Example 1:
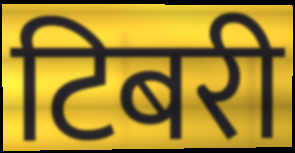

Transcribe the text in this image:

टिबरी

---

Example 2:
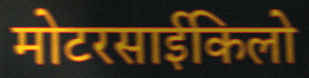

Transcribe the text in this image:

मोटरसाईकिलो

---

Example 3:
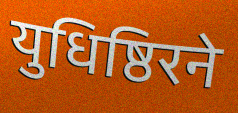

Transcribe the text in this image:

युधिष्ठिरने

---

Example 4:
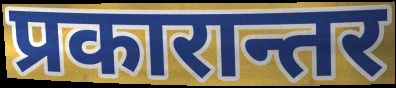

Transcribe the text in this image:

प्रकारान्तर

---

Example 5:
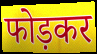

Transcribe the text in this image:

फोड़कर